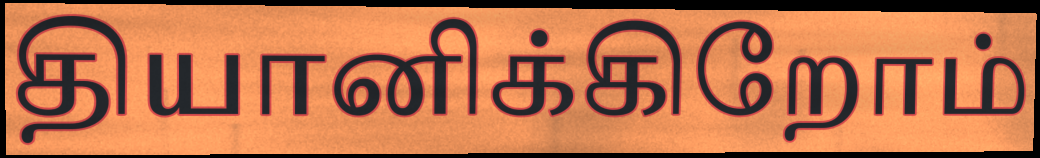
தியானிக்கிறோம்